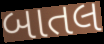
બાતલ